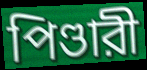
পিণ্ডারী